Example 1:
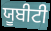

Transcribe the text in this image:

ਯੂਬੀਟੀ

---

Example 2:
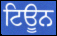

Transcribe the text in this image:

ਟਿਊਨ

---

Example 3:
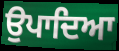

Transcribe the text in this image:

ਉਪਾਦਿਆ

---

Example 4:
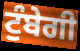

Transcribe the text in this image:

ਟੁੰਬੇਗੀ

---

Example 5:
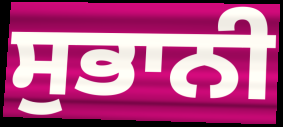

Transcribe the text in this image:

ਸੁਭਾਨੀ